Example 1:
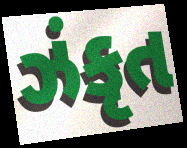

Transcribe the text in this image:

ઝંકૃત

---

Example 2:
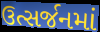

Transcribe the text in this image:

ઉત્સર્જનમાં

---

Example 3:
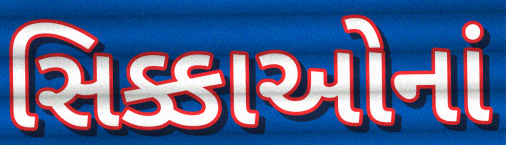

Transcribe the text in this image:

સિક્કાઓનાં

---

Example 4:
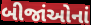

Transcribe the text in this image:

બીજાંઓનાં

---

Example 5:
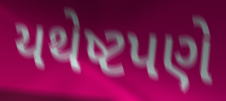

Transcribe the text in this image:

યથેષ્ટપણે